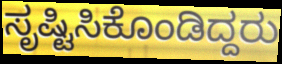
ಸೃಷ್ಟಿಸಿಕೊಂಡಿದ್ದರು